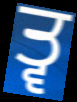
ਤ੍ਵ